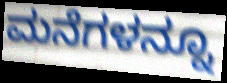
ಮನೆಗಳನ್ನೂ